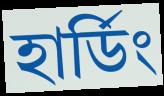
হার্ডিং